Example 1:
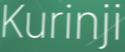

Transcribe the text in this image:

Kurinji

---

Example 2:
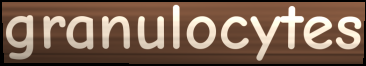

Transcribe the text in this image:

granulocytes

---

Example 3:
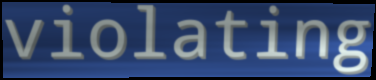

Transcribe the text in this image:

violating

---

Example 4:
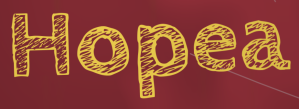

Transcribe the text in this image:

Hopea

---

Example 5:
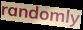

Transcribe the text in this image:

randomly